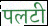
पलटी